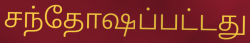
சந்தோஷப்பட்டது